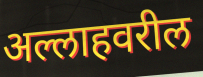
अल्लाहवरील